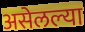
असेलल्या